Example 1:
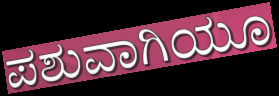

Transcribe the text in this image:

ಪಶುವಾಗಿಯೂ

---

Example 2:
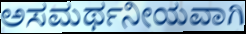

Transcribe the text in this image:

ಅಸಮರ್ಥನೀಯವಾಗಿ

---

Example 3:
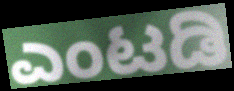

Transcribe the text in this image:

ಎಂಟಡಿ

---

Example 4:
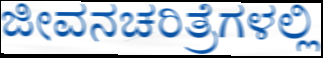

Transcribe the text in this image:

ಜೀವನಚರಿತ್ರೆಗಳಲ್ಲಿ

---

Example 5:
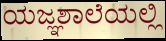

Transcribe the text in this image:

ಯಜ್ಞಶಾಲೆಯಲ್ಲಿ